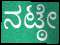
ನಟ್ಠೇ